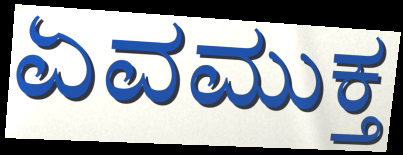
ಏವಮುಕ್ತ